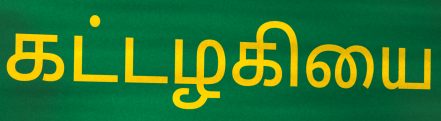
கட்டழகியை